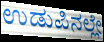
ಉಡುಪಿನಲ್ಲೇ